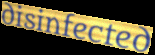
disinfected